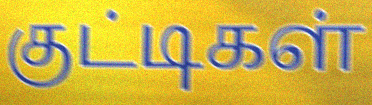
குட்டிகள்